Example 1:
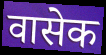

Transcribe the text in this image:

वासेक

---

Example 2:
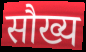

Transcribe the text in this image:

सौख्य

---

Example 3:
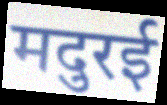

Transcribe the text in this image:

मदुरई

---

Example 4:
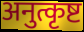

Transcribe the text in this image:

अनुत्कृष्ट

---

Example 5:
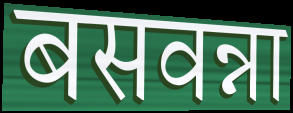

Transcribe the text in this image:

बसवन्ना